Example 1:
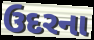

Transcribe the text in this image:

ઉદરના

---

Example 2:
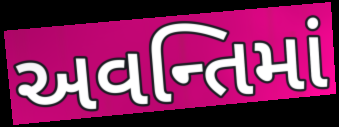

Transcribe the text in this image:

અવન્તિમાં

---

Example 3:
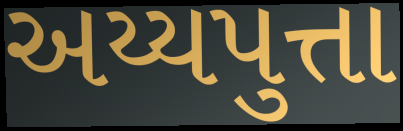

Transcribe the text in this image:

અય્યપુત્તા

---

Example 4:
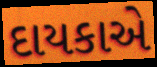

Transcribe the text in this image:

દાયકાએ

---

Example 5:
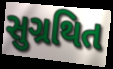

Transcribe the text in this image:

સુગ્રથિત